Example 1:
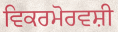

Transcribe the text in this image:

ਵਿਕਰਮੋਰਵਸ਼ੀ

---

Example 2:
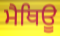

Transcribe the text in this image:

ਮੈਥਿਊ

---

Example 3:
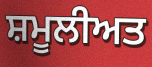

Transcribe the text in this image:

ਸ਼ਮੂਲੀਅਤ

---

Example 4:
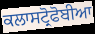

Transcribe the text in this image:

ਕਲਾਸਟ੍ਰੋਫੋਬੀਆ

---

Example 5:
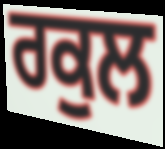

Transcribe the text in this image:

ਰਕੁਲ